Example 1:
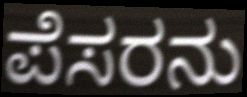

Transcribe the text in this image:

ಪೆಸರನು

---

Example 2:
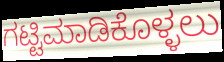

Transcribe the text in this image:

ಗಟ್ಟಿಮಾಡಿಕೊಳ್ಳಲು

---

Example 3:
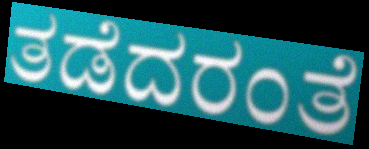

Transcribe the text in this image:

ತಡೆದರಂತೆ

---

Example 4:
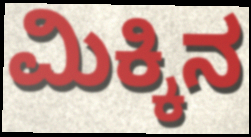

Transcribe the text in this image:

ಮಿಕ್ಕಿನ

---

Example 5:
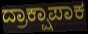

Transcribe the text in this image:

ದ್ರಾಕ್ಷಾಪಾಕ